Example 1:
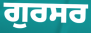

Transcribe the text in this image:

ਗੁਰਸਰ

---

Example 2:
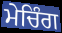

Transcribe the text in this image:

ਮੇਚਿੰਗ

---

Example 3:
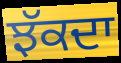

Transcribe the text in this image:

ਝੱਕਦਾ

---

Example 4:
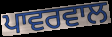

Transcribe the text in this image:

ਪਾਵਰਵਾਲ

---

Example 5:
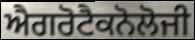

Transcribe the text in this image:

ਐਗਰੋਟੈਕਨੋਲੋਜੀ